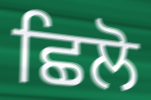
ਛਿਲੋ